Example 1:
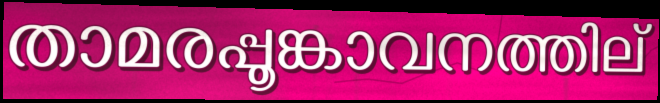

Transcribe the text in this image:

താമരപ്പൂങ്കാവനത്തില്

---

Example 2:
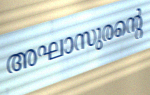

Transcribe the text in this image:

അഘാസുരന്റെ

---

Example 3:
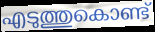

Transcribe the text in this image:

എടുത്തുകൊണ്ട്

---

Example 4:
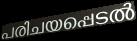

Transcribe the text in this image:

പരിചയപ്പെടൽ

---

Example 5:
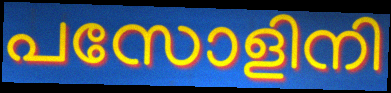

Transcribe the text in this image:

പസോളിനി